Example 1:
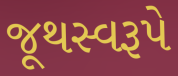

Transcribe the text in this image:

જૂથસ્વરૂપે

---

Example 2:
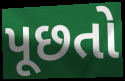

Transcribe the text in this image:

પૂછતો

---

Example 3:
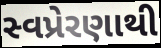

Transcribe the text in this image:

સ્વપ્રેરણાથી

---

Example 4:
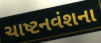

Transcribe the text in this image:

ચાષ્ટનવંશના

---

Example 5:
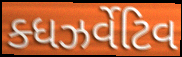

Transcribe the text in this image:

ક્ધઝર્વેટિવ